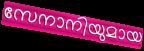
സേനാനിയുമായ